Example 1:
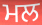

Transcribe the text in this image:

ਮਲ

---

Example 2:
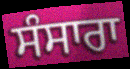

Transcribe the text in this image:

ਸੰਸਾਰਾ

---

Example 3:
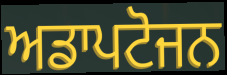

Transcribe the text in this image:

ਅਡਾਪਟੋਜਨ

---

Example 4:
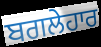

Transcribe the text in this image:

ਬਗਲੇਹਾਰ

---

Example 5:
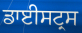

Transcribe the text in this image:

ਡਾਈਸਟ੍ਰਸ